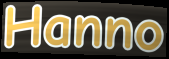
Hanno